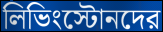
লিভিংস্টোনদের